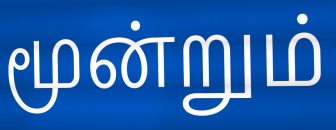
மூன்றும்